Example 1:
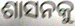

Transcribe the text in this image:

ଶାସନକୁ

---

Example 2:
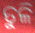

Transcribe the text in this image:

ତୁଳି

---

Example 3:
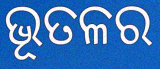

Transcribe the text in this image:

ଭୂତଳର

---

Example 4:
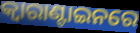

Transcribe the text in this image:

କ୍ବାରାଣ୍ଟାଇନରେ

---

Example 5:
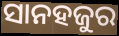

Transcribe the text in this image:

ସାନହଜୁର